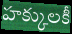
హక్కులకీ